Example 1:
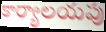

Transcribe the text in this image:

కార్యాలయపు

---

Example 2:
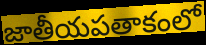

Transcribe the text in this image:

జాతీయపతాకంలో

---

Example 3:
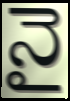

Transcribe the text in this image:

నై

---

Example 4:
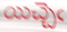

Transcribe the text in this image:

యిచ్చెఁ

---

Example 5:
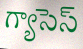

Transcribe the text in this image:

గ్యాసెస్